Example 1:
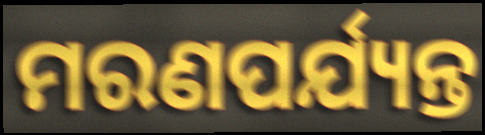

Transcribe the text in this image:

ମରଣପର୍ଯ୍ୟନ୍ତ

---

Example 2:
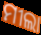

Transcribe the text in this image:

ମୀଲା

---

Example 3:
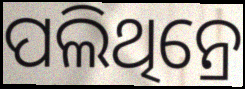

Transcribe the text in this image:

ପଲିଥିନ୍ରେ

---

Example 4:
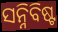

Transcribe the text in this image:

ସନ୍ନିବିଷ୍ଟ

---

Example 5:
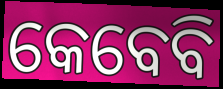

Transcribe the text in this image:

କେବେବି